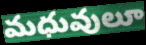
మధువులూ